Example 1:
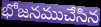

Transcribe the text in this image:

భోజనముచేసిన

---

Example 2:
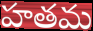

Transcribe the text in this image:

హతమ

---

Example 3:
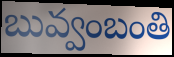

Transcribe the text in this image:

బువ్వంబంతి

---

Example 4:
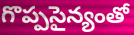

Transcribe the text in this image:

గొప్పసైన్యంతో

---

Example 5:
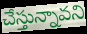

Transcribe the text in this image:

చేస్తున్నావని